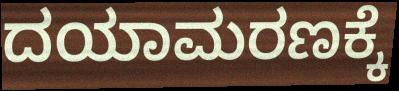
ದಯಾಮರಣಕ್ಕೆ